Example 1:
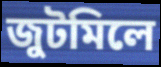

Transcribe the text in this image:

জুটমিলে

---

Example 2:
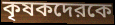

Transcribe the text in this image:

কৃষকদেরকে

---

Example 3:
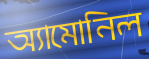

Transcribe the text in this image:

অ্যামোনিল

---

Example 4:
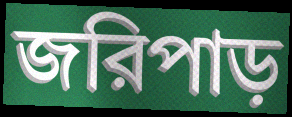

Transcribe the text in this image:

জরিপাড়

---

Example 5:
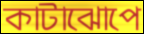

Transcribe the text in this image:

কাটাঝোপে